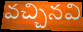
వచ్చినవి